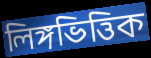
লিঙ্গভিত্তিক